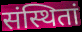
संस्थितां